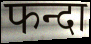
फन्दा